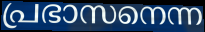
പ്രഭാസനെന്ന